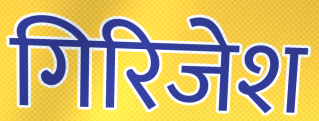
गिरिजेश